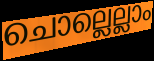
ചൊല്ലെല്ലാം